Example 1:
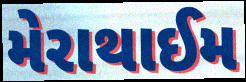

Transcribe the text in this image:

મેરાથાઈમ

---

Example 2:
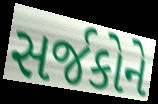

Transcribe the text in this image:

સર્જકોને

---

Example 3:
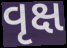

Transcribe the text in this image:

વૃક્ષ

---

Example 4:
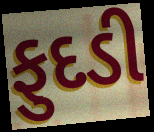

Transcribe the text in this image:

ફુદડી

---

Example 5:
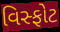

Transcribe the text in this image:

વિસ્ફોટ